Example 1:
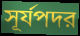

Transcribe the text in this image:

সূর্যপদর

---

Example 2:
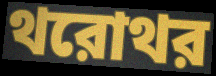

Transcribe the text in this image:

থরোথর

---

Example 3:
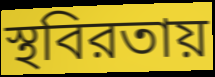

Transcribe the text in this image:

স্থবিরতায়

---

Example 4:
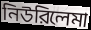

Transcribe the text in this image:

নিউরিলেমা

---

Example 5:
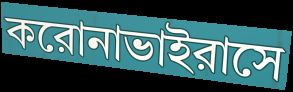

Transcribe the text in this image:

করোনাভাইরাসে